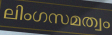
ലിംഗസമത്വം